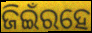
ଜିଇଁରହେ